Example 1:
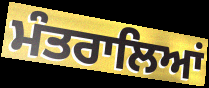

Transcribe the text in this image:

ਮੰਤਰਾਲਿਆਂ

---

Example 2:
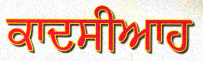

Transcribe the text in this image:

ਕਾਦਸੀਆਹ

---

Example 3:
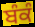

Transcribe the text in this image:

ਬੰਕੰ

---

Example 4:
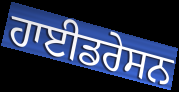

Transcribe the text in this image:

ਹਾਈਡਰੇਸਨ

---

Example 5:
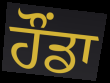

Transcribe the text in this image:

ਹੌਂਡਾ